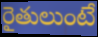
రైతులుంటే